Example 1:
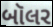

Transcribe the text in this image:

બૉલર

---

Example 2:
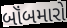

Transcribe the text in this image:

બૉંબમારો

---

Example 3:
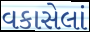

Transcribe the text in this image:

વકાસેલાં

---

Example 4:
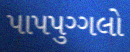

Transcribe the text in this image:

પાપપુગ્ગલો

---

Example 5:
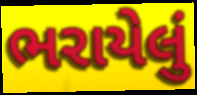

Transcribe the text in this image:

ભરાયેલું